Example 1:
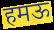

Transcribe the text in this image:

हमऊ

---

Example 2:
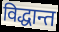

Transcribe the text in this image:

विद्धान्त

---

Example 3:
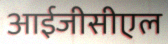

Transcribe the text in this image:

आईजीसीएल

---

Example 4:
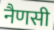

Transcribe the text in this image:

नैणसी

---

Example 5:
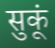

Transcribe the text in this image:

सुकूं